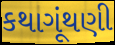
કથાગૂંથણી